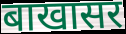
बाखासर